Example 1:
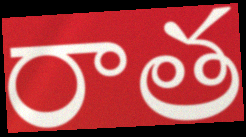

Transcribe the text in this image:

రాత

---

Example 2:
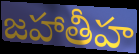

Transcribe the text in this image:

జహాతీహ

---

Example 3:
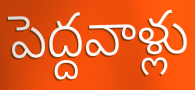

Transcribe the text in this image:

పెద్దవాళ్లు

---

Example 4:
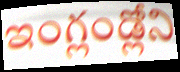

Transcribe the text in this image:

ఇంగ్లండ్లోని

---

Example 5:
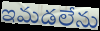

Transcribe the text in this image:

ఇమడలేను